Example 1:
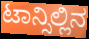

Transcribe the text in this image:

ಟಾನ್ಸಿಲ್ಲಿನ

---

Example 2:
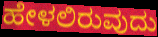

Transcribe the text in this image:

ಹೇಳಲಿರುವುದು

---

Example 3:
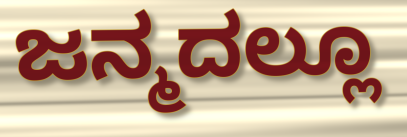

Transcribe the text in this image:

ಜನ್ಮದಲ್ಲೂ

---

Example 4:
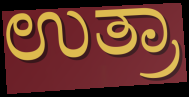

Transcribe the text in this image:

ಉತ್ರಾ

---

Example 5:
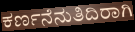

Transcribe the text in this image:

ಕರ್ಣನೆನುತಿದಿರಾಗಿ